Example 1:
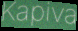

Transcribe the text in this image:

Kapiva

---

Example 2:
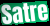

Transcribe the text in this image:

Satre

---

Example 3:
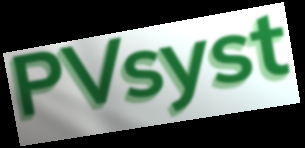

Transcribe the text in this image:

PVsyst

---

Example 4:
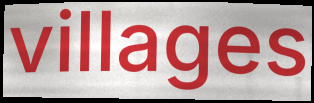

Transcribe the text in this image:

villages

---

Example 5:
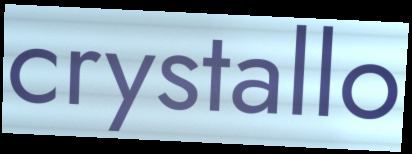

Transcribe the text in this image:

crystallo